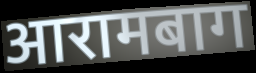
आरामबाग